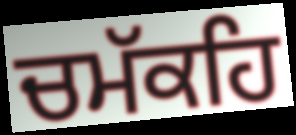
ਚਮੱਕਹਿ